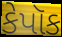
કેપૉક